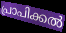
പ്രാപിക്കൽ